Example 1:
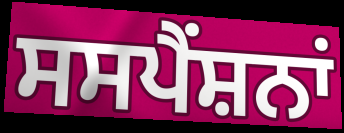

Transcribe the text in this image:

ਸਸਪੈਂਸ਼ਨਾਂ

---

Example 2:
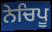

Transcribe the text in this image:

ਨੇਚਿਪੂ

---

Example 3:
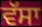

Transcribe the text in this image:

ਵੱਸਾ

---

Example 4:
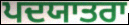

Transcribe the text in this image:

ਪਦਯਾਤਰਾ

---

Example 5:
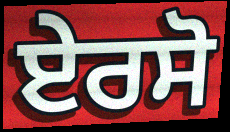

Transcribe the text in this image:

ਏਰਸੋ